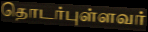
தொடர்புள்ளவர்